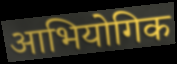
आभियोगिक